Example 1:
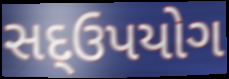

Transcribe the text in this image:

સદ્ઉપયોગ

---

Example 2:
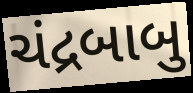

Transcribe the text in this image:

ચંદ્રબાબુ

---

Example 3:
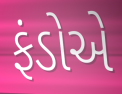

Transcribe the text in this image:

ફંડોએ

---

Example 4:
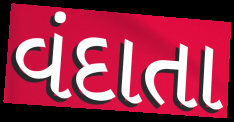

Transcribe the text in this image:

વંદાતા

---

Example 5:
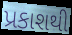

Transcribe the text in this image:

પ્રકાશથી